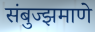
संबुज्झमाणे